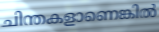
ചിന്തകളാണെങ്കിൽ